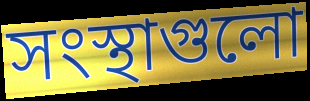
সংস্থাগুলো